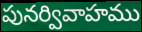
పునర్వివాహము